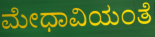
ಮೇಧಾವಿಯಂತೆ